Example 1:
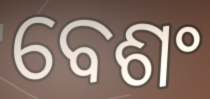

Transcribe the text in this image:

ବେଶଂ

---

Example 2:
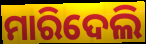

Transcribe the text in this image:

ମାରିଦେଲି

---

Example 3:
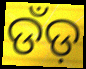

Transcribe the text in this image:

ଡଁଡ଼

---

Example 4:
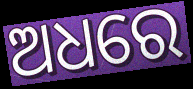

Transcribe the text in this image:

ଅଧରେ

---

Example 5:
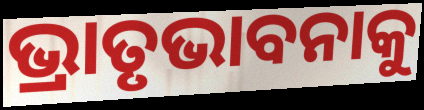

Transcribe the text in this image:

ଭ୍ରାତୃଭାବନାକୁ